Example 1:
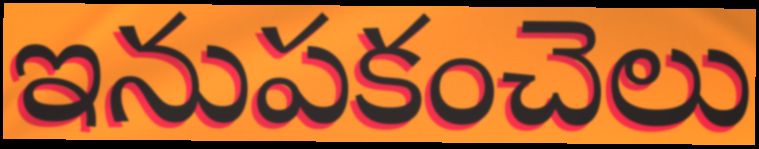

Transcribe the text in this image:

ఇనుపకంచెలు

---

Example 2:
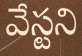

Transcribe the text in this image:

వేస్టని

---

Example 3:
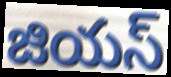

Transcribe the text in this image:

జియస్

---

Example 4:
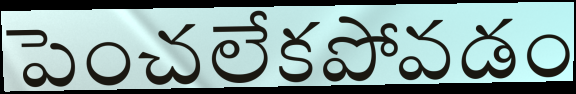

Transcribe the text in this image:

పెంచలేకపోవడం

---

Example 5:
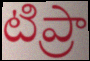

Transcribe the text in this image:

టిప్రా